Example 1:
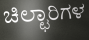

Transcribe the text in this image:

ಚಿಲ್ಟಾರಿಗಳ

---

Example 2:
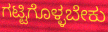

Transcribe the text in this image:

ಗಟ್ಟಿಗೊಳ್ಳಬೇಕು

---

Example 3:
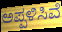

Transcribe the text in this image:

ಅಪ್ಪಳಿಸಿವೆ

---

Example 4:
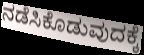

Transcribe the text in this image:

ನಡೆಸಿಕೊಡುವುದಕ್ಕೆ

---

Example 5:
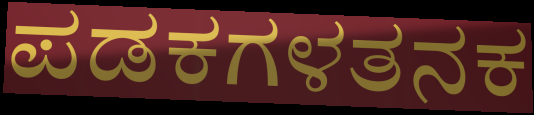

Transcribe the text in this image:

ಪಡಕಗಳತನಕ